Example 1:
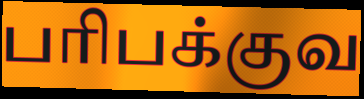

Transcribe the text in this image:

பரிபக்குவ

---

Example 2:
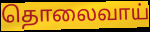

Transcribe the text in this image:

தொலைவாய்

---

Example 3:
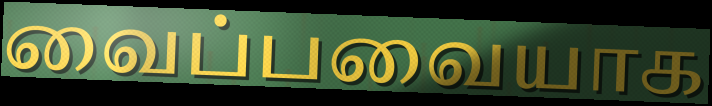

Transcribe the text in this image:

வைப்பவையாக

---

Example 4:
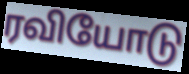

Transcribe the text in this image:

ரவியோடு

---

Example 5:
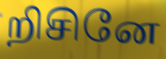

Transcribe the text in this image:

றிசினே